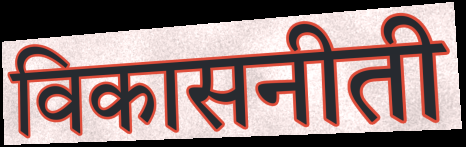
विकासनीती